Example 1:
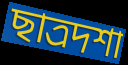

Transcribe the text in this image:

ছাত্রদশা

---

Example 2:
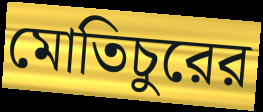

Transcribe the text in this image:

মোতিচুরের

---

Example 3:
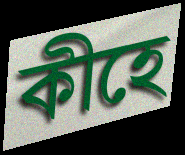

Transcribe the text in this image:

কীহে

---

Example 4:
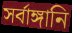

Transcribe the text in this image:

সর্বাঙ্গানি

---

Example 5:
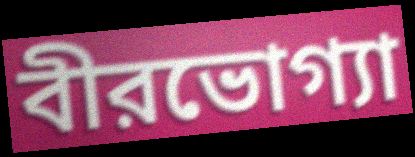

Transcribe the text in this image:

বীরভোগ্যা